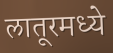
लातूरमध्ये